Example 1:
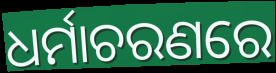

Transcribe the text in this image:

ଧର୍ମାଚରଣରେ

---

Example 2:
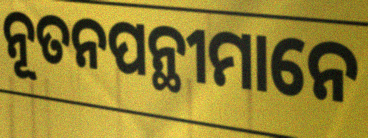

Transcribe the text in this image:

ନୂତନପନ୍ଥୀମାନେ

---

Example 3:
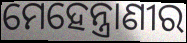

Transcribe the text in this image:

ମେହେନ୍ତ୍ରାଣୀର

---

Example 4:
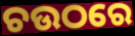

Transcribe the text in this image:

ଚଉଠରେ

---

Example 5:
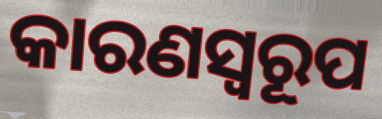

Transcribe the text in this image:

କାରଣସ୍ୱରୂପ